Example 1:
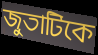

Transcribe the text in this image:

জুতাটিকে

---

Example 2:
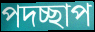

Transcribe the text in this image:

পদচ্ছাপ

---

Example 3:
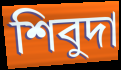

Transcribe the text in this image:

শিবুদা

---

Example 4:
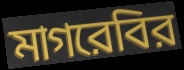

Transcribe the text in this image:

মাগরেবির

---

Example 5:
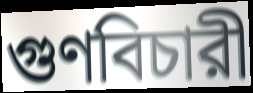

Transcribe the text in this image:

গুণবিচারী